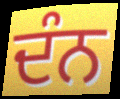
ਦੰਨ